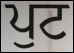
ਪੁਟ